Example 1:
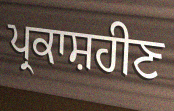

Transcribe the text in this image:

ਪ੍ਰਕਾਸ਼ਹੀਣ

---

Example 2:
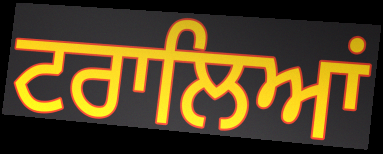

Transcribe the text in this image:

ਟਰਾਲਿਆਂ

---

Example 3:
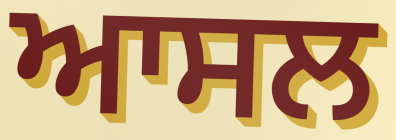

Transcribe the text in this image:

ਆਸਲ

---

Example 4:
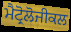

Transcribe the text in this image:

ਮੈਟ੍ਰੋਲੋਜੀਕਲ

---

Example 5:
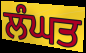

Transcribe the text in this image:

ਲੰਘਤ